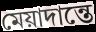
মেয়াদান্তে